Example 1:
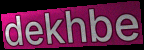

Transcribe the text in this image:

dekhbe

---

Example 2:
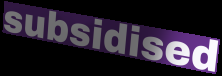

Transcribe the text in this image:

subsidised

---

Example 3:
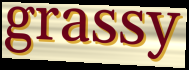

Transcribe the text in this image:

grassy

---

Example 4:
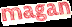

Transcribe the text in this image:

magan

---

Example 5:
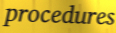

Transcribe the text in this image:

procedures